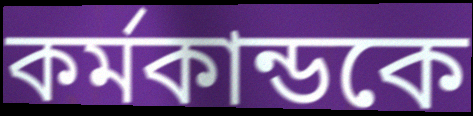
কর্মকান্ডকে